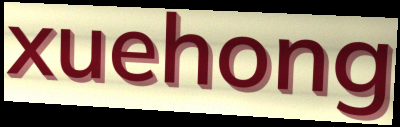
xuehong